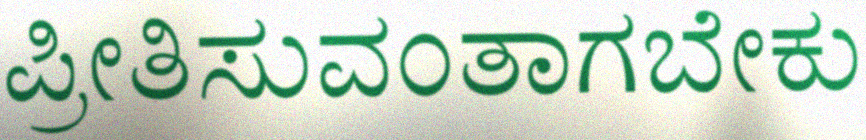
ಪ್ರೀತಿಸುವಂತಾಗಬೇಕು